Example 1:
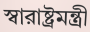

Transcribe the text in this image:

স্বারাষ্ট্রমন্ত্রী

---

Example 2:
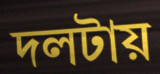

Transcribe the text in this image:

দলটায়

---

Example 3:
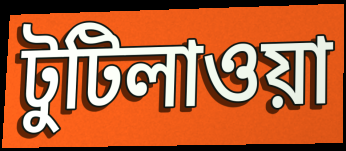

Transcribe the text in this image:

টুটিলাওয়া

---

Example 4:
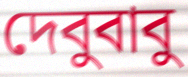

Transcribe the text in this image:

দেবুবাবু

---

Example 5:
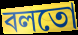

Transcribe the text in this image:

বলতো